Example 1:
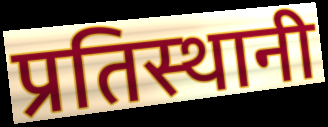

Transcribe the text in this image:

प्रतिस्थानी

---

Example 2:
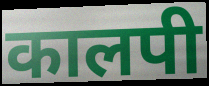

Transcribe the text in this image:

कालपी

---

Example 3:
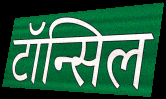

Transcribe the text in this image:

टॉन्सिल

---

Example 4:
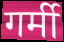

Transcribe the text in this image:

गर्मी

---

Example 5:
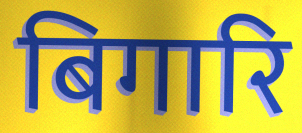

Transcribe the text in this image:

बिगारि